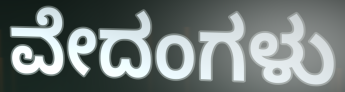
ವೇದಂಗಳು